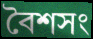
বৈশসং